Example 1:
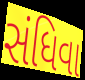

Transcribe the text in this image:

સંધિવા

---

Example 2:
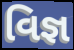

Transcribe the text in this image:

વિજ્ઞ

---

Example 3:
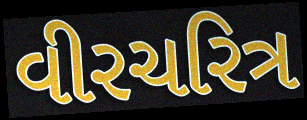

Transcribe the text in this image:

વીરચરિત્ર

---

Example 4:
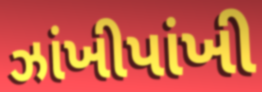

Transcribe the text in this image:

ઝાંખીપાંખી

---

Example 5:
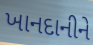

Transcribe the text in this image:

ખાનદાનીને